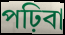
পঢ়িবা